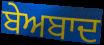
ਬੇਅਬਾਦ